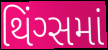
થિંગ્સમાં